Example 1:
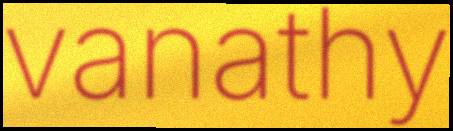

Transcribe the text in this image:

vanathy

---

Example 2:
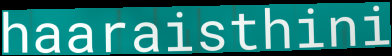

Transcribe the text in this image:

haaraisthini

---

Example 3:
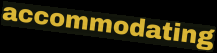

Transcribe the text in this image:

accommodating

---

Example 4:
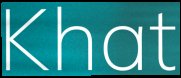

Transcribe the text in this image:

Khat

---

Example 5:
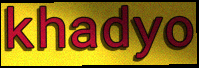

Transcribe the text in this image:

khadyo